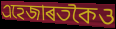
এহেজাৰতকৈও